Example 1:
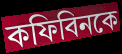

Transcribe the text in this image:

কফিবিনকে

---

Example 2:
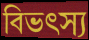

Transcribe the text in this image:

বিভৎস্য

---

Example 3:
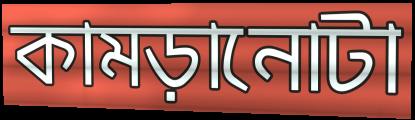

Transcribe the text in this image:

কামড়ানোটা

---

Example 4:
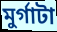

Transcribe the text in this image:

মুর্গাটা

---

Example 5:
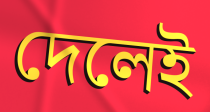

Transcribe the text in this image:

দেলেই